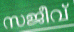
സജീവ്